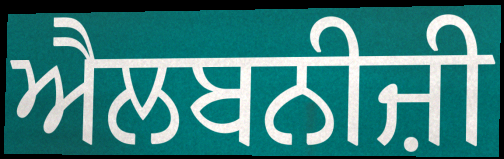
ਐਲਬਨੀਜ਼ੀ